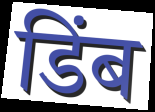
डिंब